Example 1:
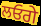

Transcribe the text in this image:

ਲਓਗੇ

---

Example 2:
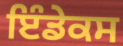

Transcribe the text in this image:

ਇੰਡੇਕਸ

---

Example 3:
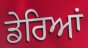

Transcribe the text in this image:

ਡੇਰਿਆਂ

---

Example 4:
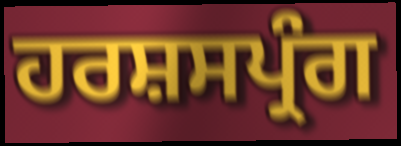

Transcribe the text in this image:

ਹਰਸ਼ਸਪ੍ਰੰਗ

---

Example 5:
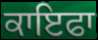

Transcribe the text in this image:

ਕਾਇਫਾ